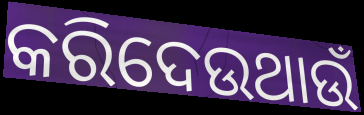
କରିଦେଉଥାଉଁ